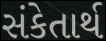
સંકેતાર્થ